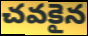
చవకైన